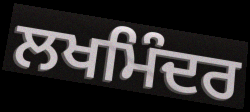
ਲਖਮਿੰਦਰ